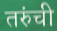
तरुंची